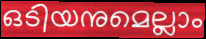
ഒടിയനുമെല്ലാം